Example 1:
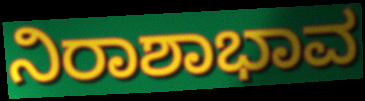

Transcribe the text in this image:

ನಿರಾಶಾಭಾವ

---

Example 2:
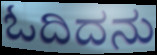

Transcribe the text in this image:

ಓದಿದನು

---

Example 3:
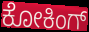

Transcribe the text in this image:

ಕೋಕಿಂಗ್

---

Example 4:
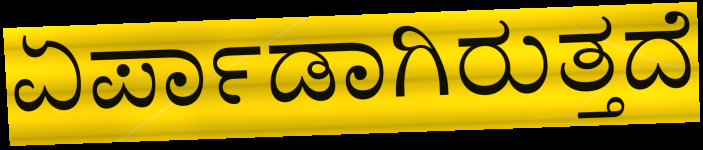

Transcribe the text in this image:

ಏರ್ಪಾಡಾಗಿರುತ್ತದೆ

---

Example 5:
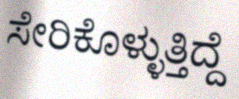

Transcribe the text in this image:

ಸೇರಿಕೊಳ್ಳುತ್ತಿದ್ದೆ